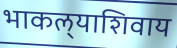
भाकल्याशिवाय